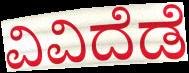
ವಿವಿದೆಡೆ